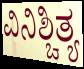
ವಿನಿಶ್ಚಿತ್ಯ